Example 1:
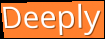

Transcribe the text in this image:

Deeply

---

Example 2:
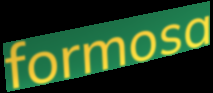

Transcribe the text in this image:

formosa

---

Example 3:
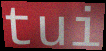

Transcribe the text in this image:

tui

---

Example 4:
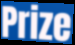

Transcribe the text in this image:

Prize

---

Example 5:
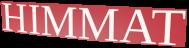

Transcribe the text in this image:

HIMMAT